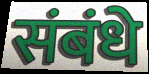
संबंधे